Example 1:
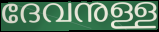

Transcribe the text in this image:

ദേവനുള്ള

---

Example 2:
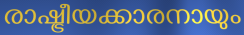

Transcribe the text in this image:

രാഷ്ട്രീയക്കാരനായും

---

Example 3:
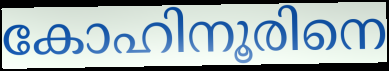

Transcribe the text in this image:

കോഹിനൂരിനെ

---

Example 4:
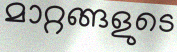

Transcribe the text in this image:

മാറ്റങ്ങളുടെ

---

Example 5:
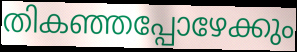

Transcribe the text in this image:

തികഞ്ഞപ്പോഴേക്കും